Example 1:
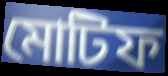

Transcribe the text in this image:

মোটিফ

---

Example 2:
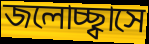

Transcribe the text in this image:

জলোচ্ছ্বাসে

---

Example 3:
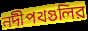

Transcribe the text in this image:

নদীপথগুলির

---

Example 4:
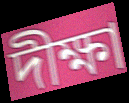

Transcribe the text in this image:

দীক্ষা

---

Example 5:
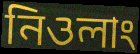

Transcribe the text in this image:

নিওলাং